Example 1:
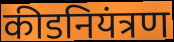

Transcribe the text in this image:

कीडनियंत्रण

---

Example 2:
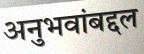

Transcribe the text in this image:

अनुभवांबद्दल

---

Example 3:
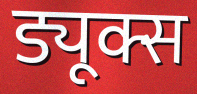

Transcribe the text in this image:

ड्यूक्स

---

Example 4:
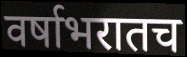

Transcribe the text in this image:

वर्षाभरातच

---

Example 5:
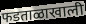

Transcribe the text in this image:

फडताळाखाली